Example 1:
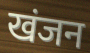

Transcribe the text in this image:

खंजन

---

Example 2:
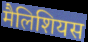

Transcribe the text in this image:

मैलिशियस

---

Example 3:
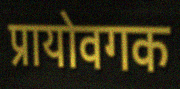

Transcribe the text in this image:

प्रायोवगक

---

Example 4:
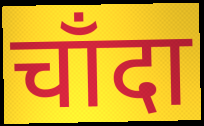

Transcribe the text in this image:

चाँदा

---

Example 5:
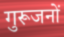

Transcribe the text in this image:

गुरूजनों